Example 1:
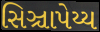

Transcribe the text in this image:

સિઞ્ચાપેય્ય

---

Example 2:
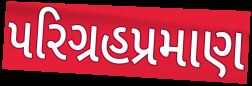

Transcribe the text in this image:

પરિગ્રહપ્રમાણ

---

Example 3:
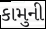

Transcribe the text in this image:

કામુની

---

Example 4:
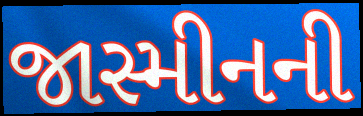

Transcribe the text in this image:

જાસ્મીનની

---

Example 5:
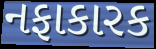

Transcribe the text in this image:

નફાકારક